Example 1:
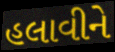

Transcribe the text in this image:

હલાવીને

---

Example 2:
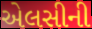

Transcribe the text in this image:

એલસીની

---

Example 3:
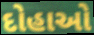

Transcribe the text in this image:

દોહાઓ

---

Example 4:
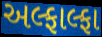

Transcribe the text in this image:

અલ્ફાલ્ફા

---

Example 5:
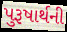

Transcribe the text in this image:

પુરૂષાર્થની